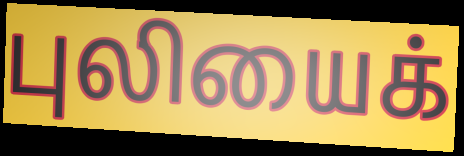
புலியைக்